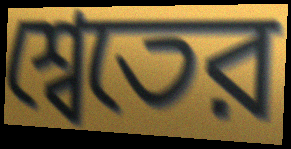
শ্বেতের